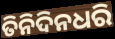
ତିନିଦିନଧରି